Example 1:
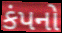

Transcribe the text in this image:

કંપનો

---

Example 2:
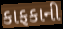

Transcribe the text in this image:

કાફકાની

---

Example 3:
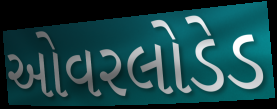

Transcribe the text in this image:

ઓવરલોડેડ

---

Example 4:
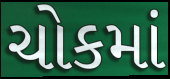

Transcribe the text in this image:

ચોકમાં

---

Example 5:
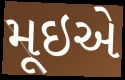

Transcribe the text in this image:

મૂઇએ